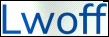
Lwoff